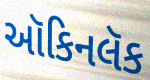
ઑકિનલૅક